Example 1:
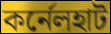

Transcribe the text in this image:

কর্নেলহাট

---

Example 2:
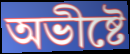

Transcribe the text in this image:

অভীষ্টে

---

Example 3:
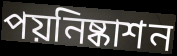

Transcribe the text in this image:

পয়নিষ্কাশন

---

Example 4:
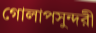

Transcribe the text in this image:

গোলাপসুন্দরী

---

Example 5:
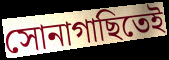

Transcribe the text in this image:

সোনাগাছিতেই